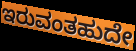
ಇರುವಂತಹುದೇ